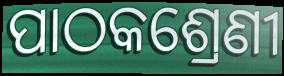
ପାଠକଶ୍ରେଣୀ